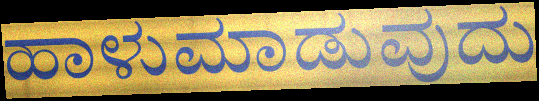
ಹಾಳುಮಾಡುವುದು